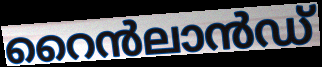
റൈൻലാൻഡ്